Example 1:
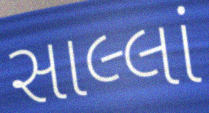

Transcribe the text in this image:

સાલ્લાં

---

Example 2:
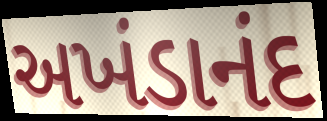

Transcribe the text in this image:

અખંડાનંદ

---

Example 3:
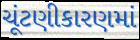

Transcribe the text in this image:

ચૂંટણીકારણમાં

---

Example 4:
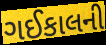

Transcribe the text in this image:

ગઈકાલની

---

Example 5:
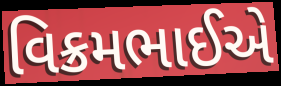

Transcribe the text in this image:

વિક્રમભાઈએ